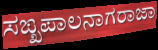
ಸಙ್ಖಪಾಲನಾಗರಾಜಾ